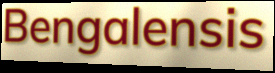
Bengalensis